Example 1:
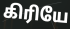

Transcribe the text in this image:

கிரியே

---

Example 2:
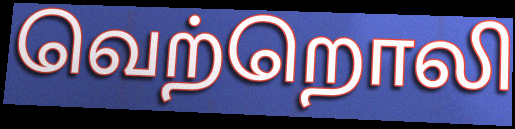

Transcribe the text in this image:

வெற்றொலி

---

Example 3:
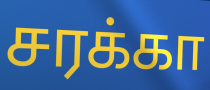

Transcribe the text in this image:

சரக்கா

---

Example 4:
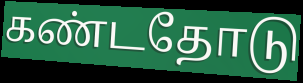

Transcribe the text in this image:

கண்டதோடு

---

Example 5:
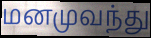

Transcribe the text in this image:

மனமுவந்து